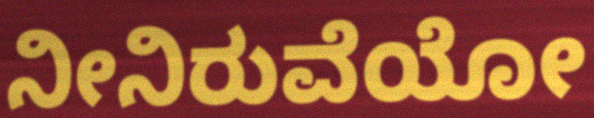
ನೀನಿರುವೆಯೋ